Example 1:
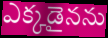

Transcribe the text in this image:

ఎక్కడైనను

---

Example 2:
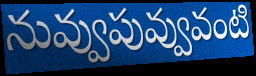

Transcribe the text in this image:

నువ్వుపువ్వువంటి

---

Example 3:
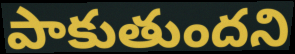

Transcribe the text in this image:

పాకుతుందని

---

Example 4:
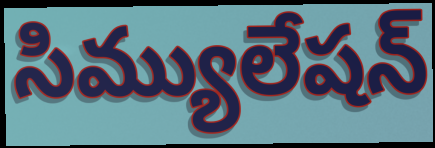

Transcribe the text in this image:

సిమ్యులేషన్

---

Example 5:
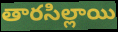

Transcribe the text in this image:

తారసిల్లాయి